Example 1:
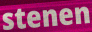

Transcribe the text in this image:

stenen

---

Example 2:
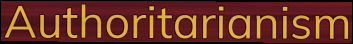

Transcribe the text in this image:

Authoritarianism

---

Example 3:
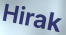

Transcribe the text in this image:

Hirak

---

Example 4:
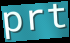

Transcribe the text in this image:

prt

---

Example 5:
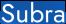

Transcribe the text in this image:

Subra